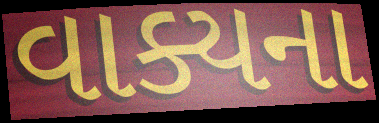
વાક્યના